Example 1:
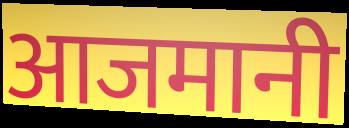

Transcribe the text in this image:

आजमानी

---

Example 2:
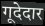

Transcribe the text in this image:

गूदेदार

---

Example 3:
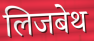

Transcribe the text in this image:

लिजबेथ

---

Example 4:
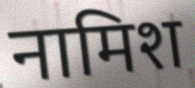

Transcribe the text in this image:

नामिश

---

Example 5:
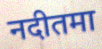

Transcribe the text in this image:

नदीतमा